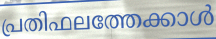
പ്രതിഫലത്തേക്കാൾ